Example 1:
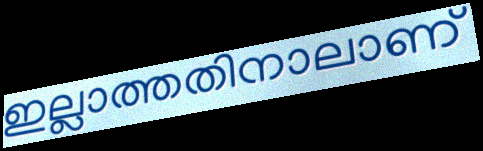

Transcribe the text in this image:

ഇല്ലാത്തതിനാലാണ്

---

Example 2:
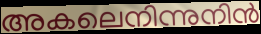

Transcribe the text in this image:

അകലെനിന്നുനിൻ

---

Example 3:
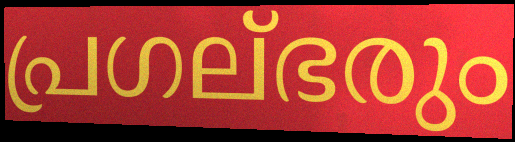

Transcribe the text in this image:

പ്രഗല്ഭരും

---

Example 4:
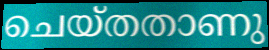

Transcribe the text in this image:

ചെയ്തതാണു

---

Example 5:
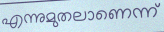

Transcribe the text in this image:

എന്നുമുതലാണെന്ന്